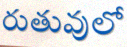
రుతువులో